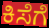
ಕಿಸೆಗೆ